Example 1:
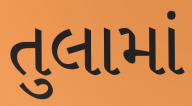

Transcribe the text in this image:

તુલામાં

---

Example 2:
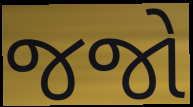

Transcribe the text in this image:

જજો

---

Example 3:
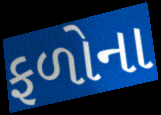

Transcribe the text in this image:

ફળોના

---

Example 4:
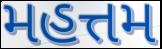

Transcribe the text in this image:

મહત્તમ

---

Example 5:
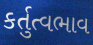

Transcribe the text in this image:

કર્તુત્વભાવ